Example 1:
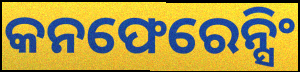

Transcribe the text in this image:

କନଫେରେନ୍ସିଂ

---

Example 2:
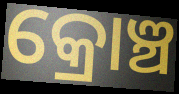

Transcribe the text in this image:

କ୍ରୋଞ୍ଚ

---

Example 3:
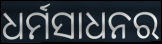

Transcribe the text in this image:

ଧର୍ମସାଧନର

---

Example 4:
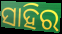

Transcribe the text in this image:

ସାହିର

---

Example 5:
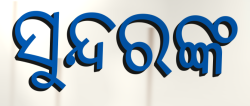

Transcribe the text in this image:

ସୁନ୍ଦରଙ୍କ